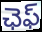
ఛెఫ్